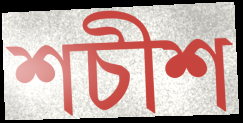
শচীশ